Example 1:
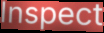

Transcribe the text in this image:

Inspect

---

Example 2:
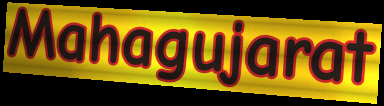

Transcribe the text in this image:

Mahagujarat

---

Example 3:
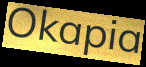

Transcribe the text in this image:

Okapia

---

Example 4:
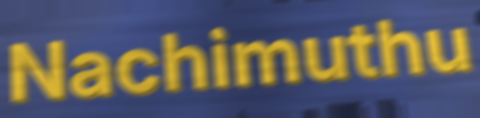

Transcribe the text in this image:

Nachimuthu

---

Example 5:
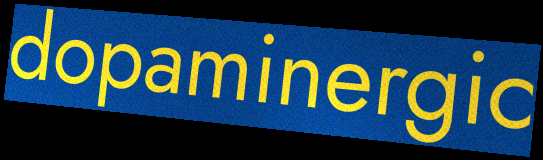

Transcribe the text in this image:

dopaminergic